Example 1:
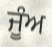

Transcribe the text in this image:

ਜੂੰਅ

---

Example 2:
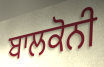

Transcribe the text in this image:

ਬਾਲਕੋਨੀ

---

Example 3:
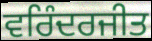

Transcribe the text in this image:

ਵਰਿੰਦਰਜੀਤ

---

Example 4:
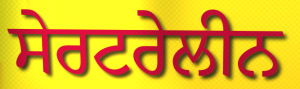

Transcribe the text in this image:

ਸੇਰਟਰੇਲੀਨ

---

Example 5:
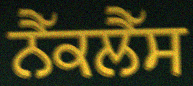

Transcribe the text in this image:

ਨੈੱਕਲੈੱਸ